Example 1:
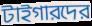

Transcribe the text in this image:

টাইগারদের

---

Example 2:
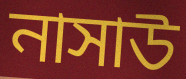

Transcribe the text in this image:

নাসাউ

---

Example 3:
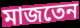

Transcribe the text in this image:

মাজতেন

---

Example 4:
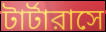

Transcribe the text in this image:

টার্টারাসে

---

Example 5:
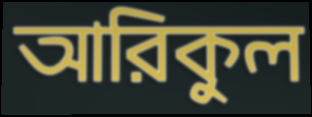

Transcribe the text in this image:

আরিকুল